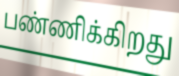
பண்ணிக்கிறது